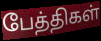
பேத்திகள்